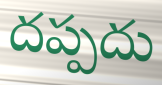
దప్పదు